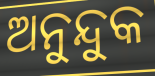
ଅନୁନ୍ଦୁକ